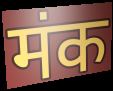
मंक